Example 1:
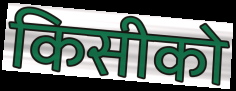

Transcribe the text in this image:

किसीको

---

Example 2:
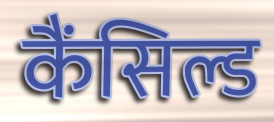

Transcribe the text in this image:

कैंसिल्ड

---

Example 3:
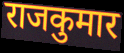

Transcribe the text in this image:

राजकुमार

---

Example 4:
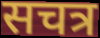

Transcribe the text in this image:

सचत्र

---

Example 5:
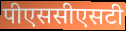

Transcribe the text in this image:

पीएससीएसटी